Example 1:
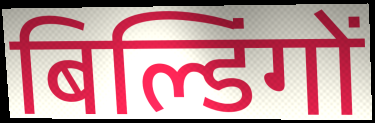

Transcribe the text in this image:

बिल्डिंगों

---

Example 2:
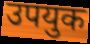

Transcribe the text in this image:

उपयुक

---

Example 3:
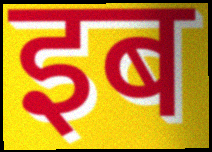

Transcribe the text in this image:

इब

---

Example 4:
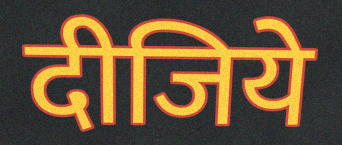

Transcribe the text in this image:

दीजिये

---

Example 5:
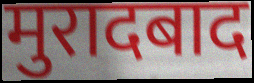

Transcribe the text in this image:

मुरादबाद